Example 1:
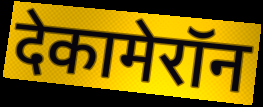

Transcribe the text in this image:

देकामेरॉन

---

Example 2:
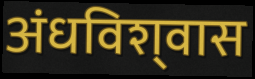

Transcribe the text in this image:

अंधविश्वास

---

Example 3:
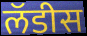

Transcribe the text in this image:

लॅडीस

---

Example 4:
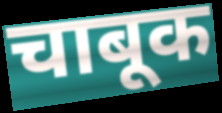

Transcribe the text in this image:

चाबूक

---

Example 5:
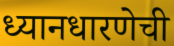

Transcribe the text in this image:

ध्यानधारणेची